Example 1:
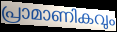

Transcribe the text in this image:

പ്രാമാണികവും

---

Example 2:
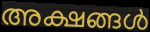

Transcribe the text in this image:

അക്ഷങ്ങൾ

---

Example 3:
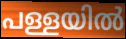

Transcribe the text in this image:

പള്ളയിൽ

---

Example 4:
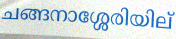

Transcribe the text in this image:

ചങ്ങനാശ്ശേരിയില്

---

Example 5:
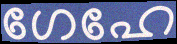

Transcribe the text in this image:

ഗേഹേ